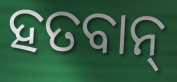
ହତବାନ୍